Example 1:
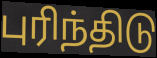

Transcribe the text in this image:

புரிந்திடு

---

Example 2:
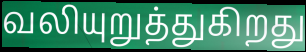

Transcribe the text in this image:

வலியுறுத்துகிறது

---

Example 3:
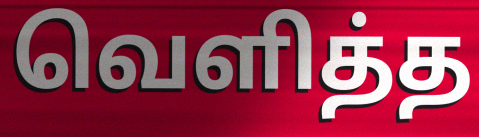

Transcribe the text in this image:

வெளித்த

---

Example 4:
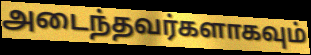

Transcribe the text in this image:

அடைந்தவர்களாகவும்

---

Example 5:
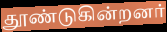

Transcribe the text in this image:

தூண்டுகின்றனர்